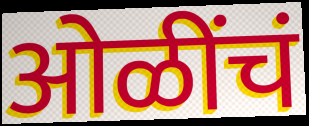
ओळींचं